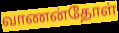
வாணன்தோள்